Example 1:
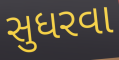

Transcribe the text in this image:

સુધરવા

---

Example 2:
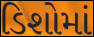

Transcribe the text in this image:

ડિશોમાં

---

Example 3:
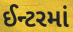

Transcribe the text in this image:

ઈન્ટરમાં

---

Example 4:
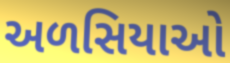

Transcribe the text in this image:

અળસિયાઓ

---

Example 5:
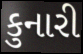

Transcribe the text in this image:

કુનારી